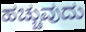
ಹಚ್ಚುವುದು